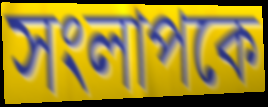
সংলাপকে